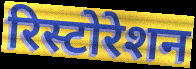
रिस्टोरेशन